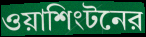
ওয়াশিংটনের